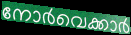
നോർവെക്കാർ